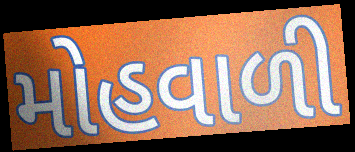
મોહવાળી